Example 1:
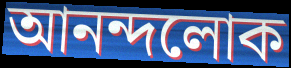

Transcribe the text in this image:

আনন্দলোক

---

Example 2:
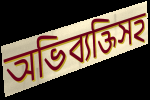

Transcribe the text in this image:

অভিব্যক্তিসহ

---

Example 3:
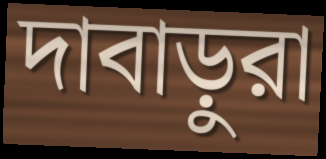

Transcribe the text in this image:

দাবাড়ুরা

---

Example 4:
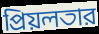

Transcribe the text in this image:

প্রিয়লতার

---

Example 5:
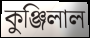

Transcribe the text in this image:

কুঞ্জিলাল